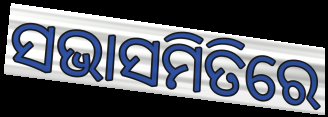
ସଭାସମିତିରେ